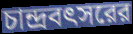
চান্দ্রবৎসরের